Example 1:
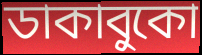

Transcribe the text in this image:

ডাকাবুকো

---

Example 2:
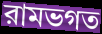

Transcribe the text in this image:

রামভগত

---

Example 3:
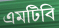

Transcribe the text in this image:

এমটিবি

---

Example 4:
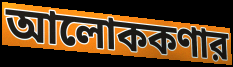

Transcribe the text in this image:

আলোককণার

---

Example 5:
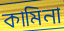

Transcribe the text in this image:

কামিনা